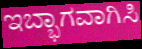
ಇಬ್ಭಾಗವಾಗಿಸಿ